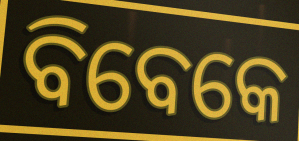
ବିବେକେ